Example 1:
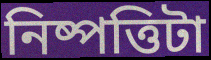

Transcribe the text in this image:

নিষ্পত্তিটা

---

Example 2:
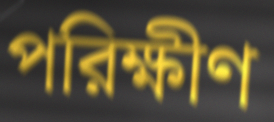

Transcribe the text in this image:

পরিক্ষীণ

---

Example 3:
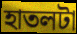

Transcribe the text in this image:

হাতলটা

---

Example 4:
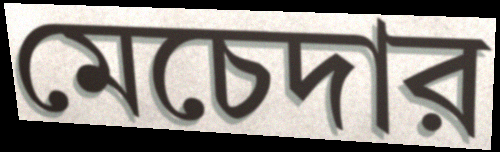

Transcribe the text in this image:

মেচেদার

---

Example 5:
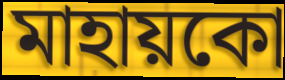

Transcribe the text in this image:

মাহায়কো